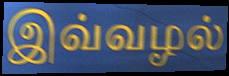
இவ்வழல்